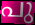
പു